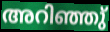
അറിഞ്ഞു്